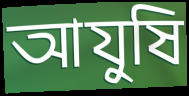
আযুষি